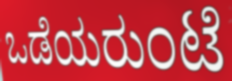
ಒಡೆಯರುಂಟೆ